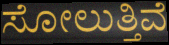
ಸೋಲುತ್ತಿವೆ